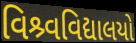
વિશ્ર્વવિદ્યાલયો